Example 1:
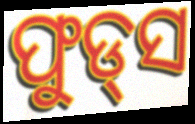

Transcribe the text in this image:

ଫୁଡ୍‌ସ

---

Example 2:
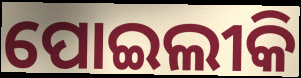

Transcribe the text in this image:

ପୋଇଲୀକି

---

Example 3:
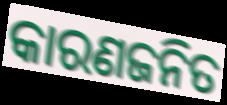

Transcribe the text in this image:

କାରଣଜନିତ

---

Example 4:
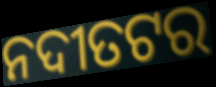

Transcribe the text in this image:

ନଦୀତଟର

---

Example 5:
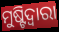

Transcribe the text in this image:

ମୁଷ୍ଟିଦ୍ୱାରା